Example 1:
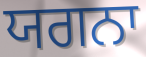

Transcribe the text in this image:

ਯਗਨਾ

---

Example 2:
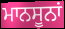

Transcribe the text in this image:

ਮਾਨਸੂਨਾਂ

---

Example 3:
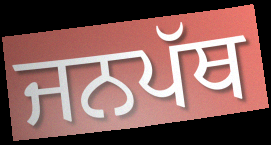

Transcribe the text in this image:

ਜਨਪੱਥ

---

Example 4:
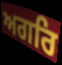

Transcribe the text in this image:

ਅਗਰਿ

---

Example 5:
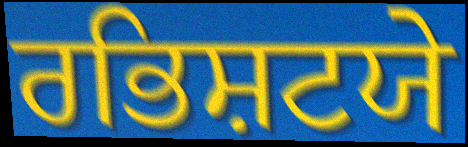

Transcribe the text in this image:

ਰਭਿਸ਼ਟਯੇ